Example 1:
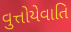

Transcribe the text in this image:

વુત્તોયેવાતિ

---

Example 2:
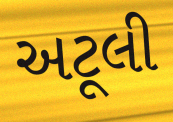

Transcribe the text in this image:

અટૂલી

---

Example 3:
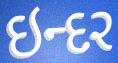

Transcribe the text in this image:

ઇન્દર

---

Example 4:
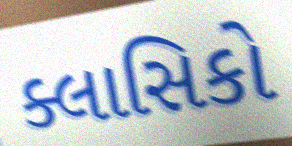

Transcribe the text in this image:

ક્લાસિકો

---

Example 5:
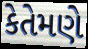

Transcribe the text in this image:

કેતેમણે